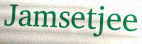
Jamsetjee